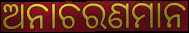
ଅନାଚରଣମାନ